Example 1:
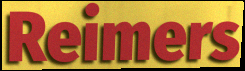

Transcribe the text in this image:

Reimers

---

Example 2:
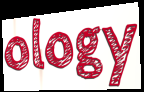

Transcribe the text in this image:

ology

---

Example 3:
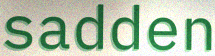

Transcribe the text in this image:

sadden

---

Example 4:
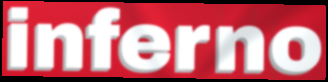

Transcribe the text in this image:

inferno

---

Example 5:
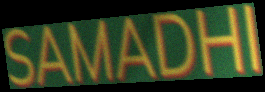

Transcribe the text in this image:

SAMADHI